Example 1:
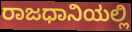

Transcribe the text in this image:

ರಾಜಧಾನಿಯಲ್ಲಿ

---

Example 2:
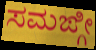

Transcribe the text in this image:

ಸಮಙ್ಗೀ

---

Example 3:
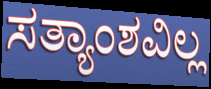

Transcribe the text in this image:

ಸತ್ಯಾಂಶವಿಲ್ಲ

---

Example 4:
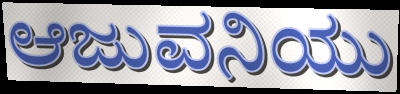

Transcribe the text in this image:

ಆಜುವನಿಯು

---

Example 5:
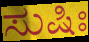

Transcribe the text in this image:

ಸುಷಿಃ